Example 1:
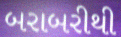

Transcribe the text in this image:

બરાબરીથી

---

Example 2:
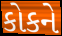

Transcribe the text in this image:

કોકને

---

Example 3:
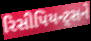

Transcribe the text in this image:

રિસીપિયન્ટ્સને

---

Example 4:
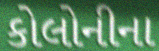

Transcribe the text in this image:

કોલોનીના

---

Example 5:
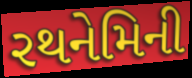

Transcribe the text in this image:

રથનેમિની